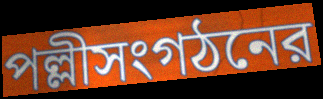
পল্লীসংগঠনের